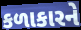
કળાકારને